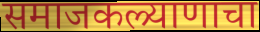
समाजकल्याणाचा